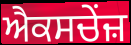
ਐਕਸਚੇਂਜ਼